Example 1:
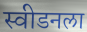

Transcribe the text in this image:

स्वीडनला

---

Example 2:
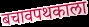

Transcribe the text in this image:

बचावपथकाला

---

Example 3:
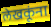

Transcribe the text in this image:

लेखकूंना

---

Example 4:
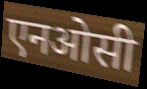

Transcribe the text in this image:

एनओसी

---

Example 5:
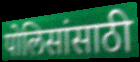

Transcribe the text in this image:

पोलिसांसाठी